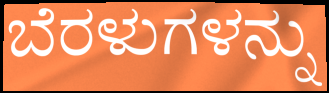
ಬೆರಳುಗಳನ್ನು